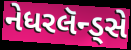
નેધરલૅન્ડ્સે